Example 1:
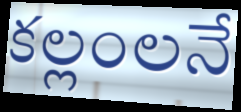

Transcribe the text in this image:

కల్లంలనే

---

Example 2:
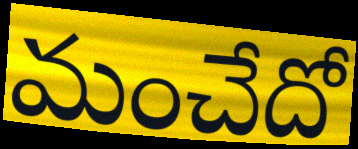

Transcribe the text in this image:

మంచేదో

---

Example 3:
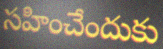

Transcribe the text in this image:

సహించేందుకు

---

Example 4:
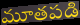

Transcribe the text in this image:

మూతపడి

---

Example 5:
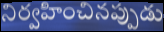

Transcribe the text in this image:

నిర్వహించినప్పుడు